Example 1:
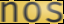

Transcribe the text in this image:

nos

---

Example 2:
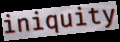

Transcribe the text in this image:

iniquity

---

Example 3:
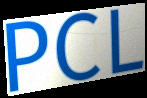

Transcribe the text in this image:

PCL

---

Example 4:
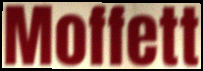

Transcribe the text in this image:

Moffett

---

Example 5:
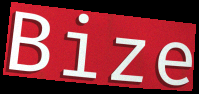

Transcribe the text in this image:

Bize